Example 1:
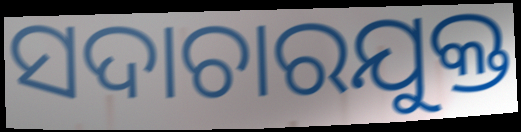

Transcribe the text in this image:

ସଦାଚାରଯୁକ୍ତ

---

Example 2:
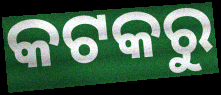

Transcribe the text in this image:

କଟକରୁ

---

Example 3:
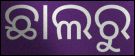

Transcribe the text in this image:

ଛାଲରୁ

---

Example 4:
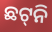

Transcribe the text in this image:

ଛଟ୍‌ନି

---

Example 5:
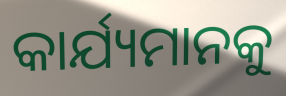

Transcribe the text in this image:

କାର୍ଯ୍ୟମାନକୁ